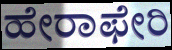
ಹೇರಾಫೇರಿ